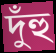
দুঁহু